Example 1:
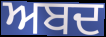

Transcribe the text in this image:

ਅਬਦ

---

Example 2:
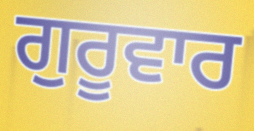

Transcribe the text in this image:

ਗੁਰੂਵਾਰ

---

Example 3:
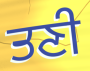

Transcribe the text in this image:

ਤਣੀ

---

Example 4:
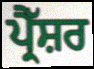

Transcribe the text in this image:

ਪ੍ਰੈੱਸ਼ਰ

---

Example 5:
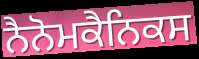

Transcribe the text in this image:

ਨੈਨੋਮਕੈਨਿਕਸ